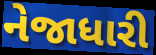
નેજાધારી